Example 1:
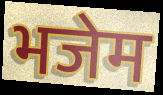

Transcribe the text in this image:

भजेम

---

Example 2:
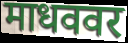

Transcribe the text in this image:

माधववर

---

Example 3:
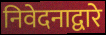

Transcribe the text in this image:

निवेदनाद्वारे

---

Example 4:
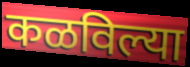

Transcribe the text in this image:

कळविल्या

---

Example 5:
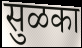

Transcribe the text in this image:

सुळका